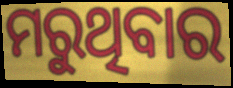
ମରୁଥିବାର